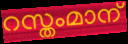
റസ്തംമാന്